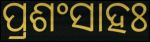
ପ୍ରଶଂସାହଃ